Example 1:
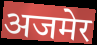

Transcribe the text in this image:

अजमेर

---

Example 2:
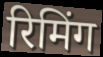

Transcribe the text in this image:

रिमिंग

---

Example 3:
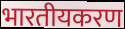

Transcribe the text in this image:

भारतीयकरण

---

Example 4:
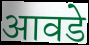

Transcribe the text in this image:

आवडे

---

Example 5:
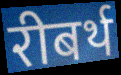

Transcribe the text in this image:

रीबर्थ